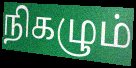
நிகழும்